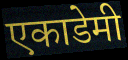
एकाडेमी